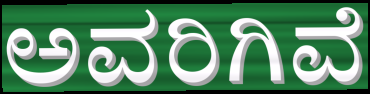
ಅವರಿಗಿವೆ